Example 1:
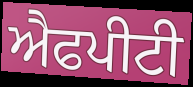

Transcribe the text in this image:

ਐਫਪੀਟੀ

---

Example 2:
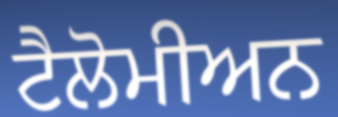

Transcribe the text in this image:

ਟੈਲੋਮੀਅਨ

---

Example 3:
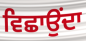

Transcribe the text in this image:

ਵਿਛਾਉਂਦਾ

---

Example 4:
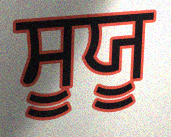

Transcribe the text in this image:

ਸੂਯੂ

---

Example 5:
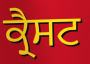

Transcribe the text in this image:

ਕ੍ਰੈਸਟ